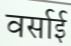
वर्साई